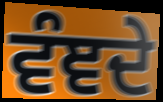
ਵੰਞਦੇ